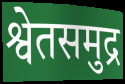
श्वेतसमुद्र